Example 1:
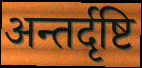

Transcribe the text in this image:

अन्तर्दृष्टि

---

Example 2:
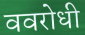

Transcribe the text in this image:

ववरोधी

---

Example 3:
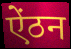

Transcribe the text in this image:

ऐंठन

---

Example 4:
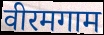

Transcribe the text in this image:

वीरमगाम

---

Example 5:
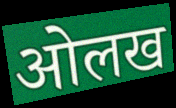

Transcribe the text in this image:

ओलख